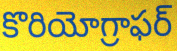
కొరియోగ్రాఫర్